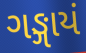
ગઙ્ગાયં